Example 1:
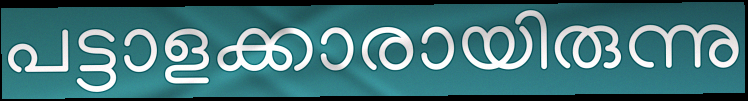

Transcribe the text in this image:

പട്ടാളക്കാരായിരുന്നു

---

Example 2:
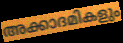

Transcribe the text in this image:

അക്കാദമികളും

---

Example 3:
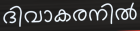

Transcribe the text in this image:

ദിവാകരനിൽ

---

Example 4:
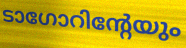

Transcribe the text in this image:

ടാഗോറിന്റേയും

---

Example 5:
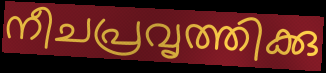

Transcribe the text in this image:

നീചപ്രവൃത്തിക്കു